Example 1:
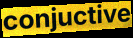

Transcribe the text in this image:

conjuctive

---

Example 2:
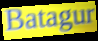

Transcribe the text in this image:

Batagur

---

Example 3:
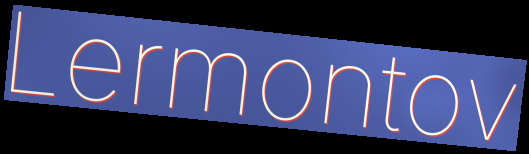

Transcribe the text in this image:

Lermontov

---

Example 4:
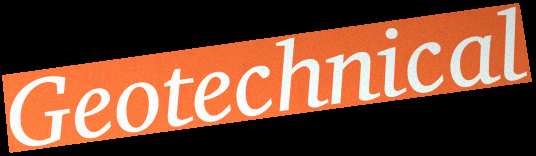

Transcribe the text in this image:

Geotechnical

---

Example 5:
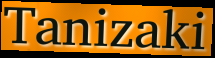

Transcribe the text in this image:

Tanizaki